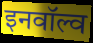
इनवॉल्व